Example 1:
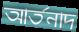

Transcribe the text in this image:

আৰ্তনাদ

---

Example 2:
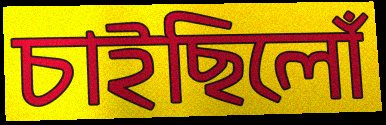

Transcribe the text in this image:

চাইছিলোঁ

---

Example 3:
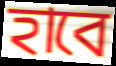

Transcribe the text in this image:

হাবে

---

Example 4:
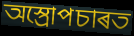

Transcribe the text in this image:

অস্ত্ৰোপচাৰত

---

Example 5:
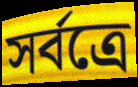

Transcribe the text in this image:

সৰ্বত্ৰে